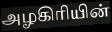
அழகிரியின்